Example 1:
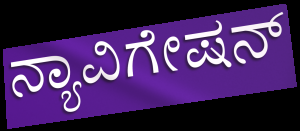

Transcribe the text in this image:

ನ್ಯಾವಿಗೇಷನ್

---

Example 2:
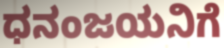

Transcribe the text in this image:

ಧನಂಜಯನಿಗೆ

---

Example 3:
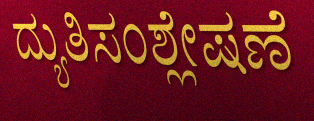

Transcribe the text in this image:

ದ್ಯುತಿಸಂಶ್ಲೇಷಣೆ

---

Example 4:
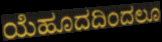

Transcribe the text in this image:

ಯೆಹೂದದಿಂದಲೂ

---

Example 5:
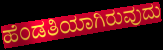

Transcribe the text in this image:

ಹೆಂಡತಿಯಾಗಿರುವುದು